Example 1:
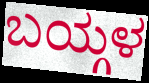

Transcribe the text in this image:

ಬಯ್ಗಳ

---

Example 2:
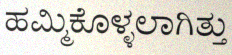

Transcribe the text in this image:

ಹಮ್ಮಿಕೊಳ್ಳಲಾಗಿತ್ತು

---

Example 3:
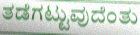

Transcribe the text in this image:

ತಡೆಗಟ್ಟುವುದೆಂತು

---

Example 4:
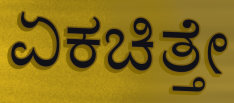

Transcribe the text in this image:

ಏಕಚಿತ್ತೇ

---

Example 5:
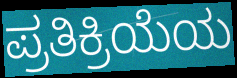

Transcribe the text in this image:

ಪ್ರತಿಕ್ರಿಯೆಯ